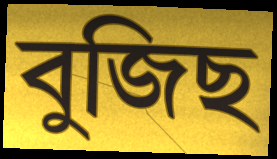
বুজিছ